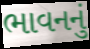
ભાવનનું